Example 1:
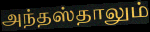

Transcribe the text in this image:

அந்தஸ்தாலும்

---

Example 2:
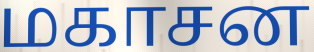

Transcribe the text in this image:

மகாசன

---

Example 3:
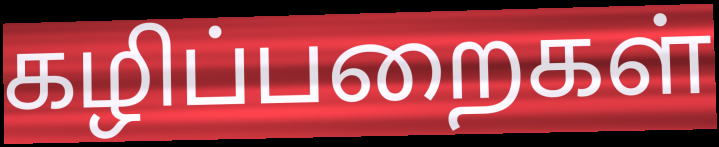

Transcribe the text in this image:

கழிப்பறைகள்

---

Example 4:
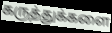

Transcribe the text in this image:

கருத்துக்களை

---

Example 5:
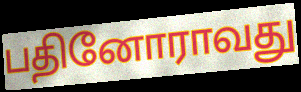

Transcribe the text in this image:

பதினோராவது